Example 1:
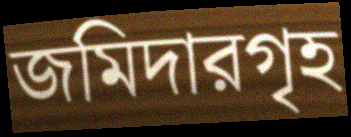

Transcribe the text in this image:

জমিদারগৃহ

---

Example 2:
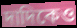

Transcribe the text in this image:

দাদিকেও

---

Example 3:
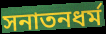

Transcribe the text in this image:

সনাতনধর্ম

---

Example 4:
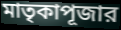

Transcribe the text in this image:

মাতৃকাপূজার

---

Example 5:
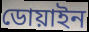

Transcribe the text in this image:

ডোয়াইন